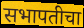
सभापतीचा